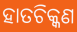
ହାତଚିକ୍କଣ